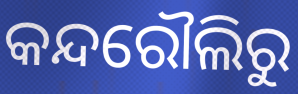
କନ୍ଦରୌଲିରୁ